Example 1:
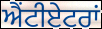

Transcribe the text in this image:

ਐਂਟੀਏਟਰਾਂ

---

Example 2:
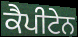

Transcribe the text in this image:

ਕੈਪੀਟੇਨ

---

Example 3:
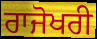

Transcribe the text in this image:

ਰਾਜੋਖਰੀ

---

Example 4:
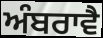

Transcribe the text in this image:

ਅੰਬਰਾਵੈ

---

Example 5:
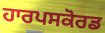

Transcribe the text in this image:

ਹਾਰਪਸਕੋਰਡ